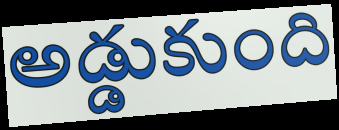
అడ్డుకుంది